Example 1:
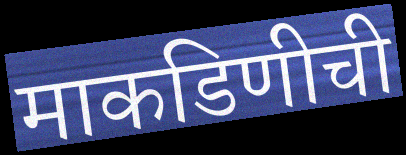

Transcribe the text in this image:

माकडिणीची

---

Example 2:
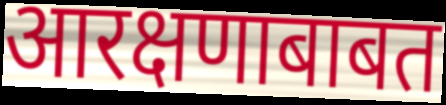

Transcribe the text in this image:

आरक्षणाबाबत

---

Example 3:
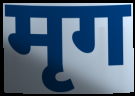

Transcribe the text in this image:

मृग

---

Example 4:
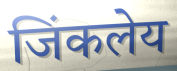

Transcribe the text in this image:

जिंकलेय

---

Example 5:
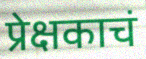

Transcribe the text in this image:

प्रेक्षकाचं